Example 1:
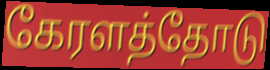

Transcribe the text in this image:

கேரளத்தோடு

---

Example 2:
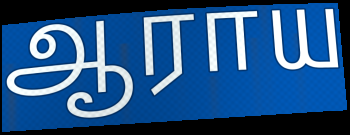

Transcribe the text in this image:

ஆராய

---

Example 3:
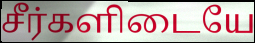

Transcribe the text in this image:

சீர்களிடையே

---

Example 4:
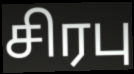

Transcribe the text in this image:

சிரபு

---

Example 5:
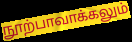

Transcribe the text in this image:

நூற்பாவாக்கலும்